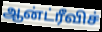
ஆன்ட்ரீவிச்